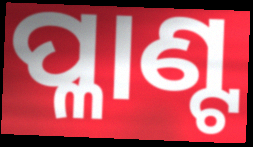
ପ୍ଳାଣ୍ଟ